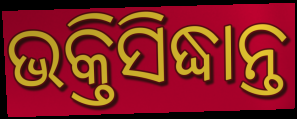
ଭକ୍ତିସିଦ୍ଧାନ୍ତ